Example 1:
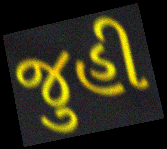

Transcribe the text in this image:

જુહી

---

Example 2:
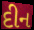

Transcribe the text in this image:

દીન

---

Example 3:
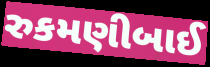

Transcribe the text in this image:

રુકમણીબાઈ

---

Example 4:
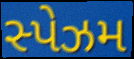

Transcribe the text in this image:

સ્પેઝમ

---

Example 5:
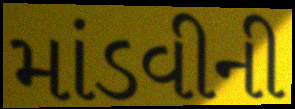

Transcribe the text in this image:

માંડવીની